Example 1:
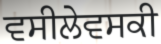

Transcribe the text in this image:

ਵਸੀਲੇਵਸਕੀ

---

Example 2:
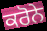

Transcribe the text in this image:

ਕਰੋਨੇ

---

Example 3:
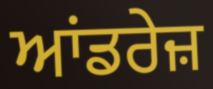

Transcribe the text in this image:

ਆਂਡਰੇਜ਼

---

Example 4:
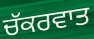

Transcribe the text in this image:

ਚੱਕਰਵਾਤ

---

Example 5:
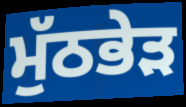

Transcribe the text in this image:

ਮੁੱਠਭੇੜ